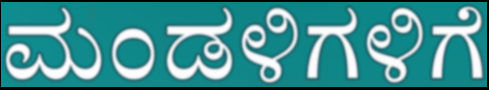
ಮಂಡಳಿಗಳಿಗೆ